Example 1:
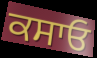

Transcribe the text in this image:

ਕਸਾਓ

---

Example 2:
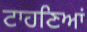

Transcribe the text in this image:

ਟਾਹਣਿਆਂ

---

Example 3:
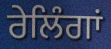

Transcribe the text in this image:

ਰੇਲਿੰਗਾਂ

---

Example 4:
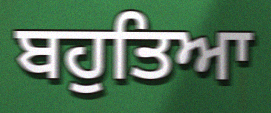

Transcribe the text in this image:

ਬਹੁਤਿਆ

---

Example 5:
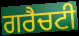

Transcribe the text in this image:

ਗਰੈਚਟੀ